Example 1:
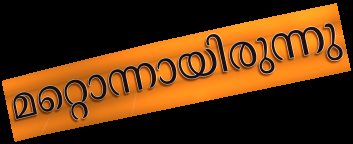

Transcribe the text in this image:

മറ്റൊന്നായിരുന്നു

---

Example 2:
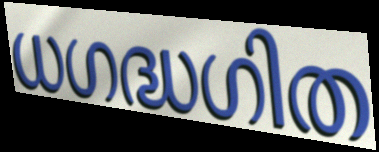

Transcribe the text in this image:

ധഗദ്ധഗിത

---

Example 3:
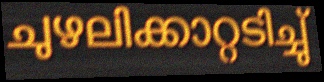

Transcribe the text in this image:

ചുഴലിക്കാറ്റടിച്ചു്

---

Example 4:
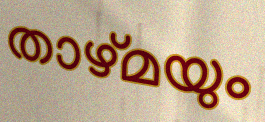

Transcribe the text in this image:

താഴ്മയും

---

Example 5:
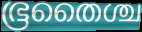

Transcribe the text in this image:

ഭൂതൈശ്ച